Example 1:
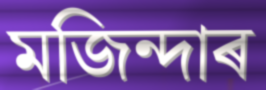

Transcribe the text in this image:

মজিন্দাৰ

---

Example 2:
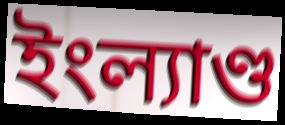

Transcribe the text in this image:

ইংল্যাণ্ড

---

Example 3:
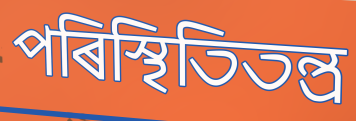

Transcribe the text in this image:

পৰিস্থিতিতন্ত্ৰ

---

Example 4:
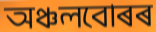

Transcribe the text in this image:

অঞ্চলবোৰৰ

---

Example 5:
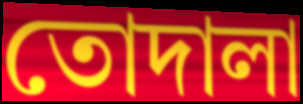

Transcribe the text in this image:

তোদালা